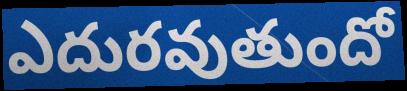
ఎదురవుతుందో